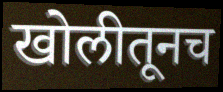
खोलीतूनच